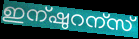
ഇന്ഷുറന്സ്